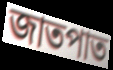
জাতপাত